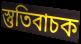
স্তুতিবাচক